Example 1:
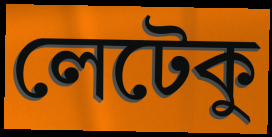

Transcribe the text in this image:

লেটেকু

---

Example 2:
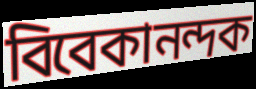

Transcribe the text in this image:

বিবেকানন্দক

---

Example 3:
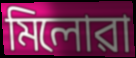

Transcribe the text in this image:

মিলোৱা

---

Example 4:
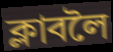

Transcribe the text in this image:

ক্লাবলৈ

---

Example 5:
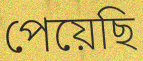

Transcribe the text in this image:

পেয়েছি